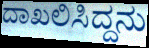
ದಾಖಲಿಸಿದ್ದನು